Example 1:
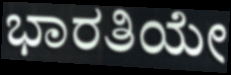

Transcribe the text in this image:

ಭಾರತಿಯೇ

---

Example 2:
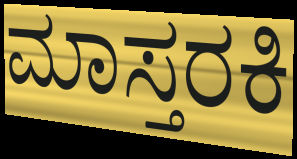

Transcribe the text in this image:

ಮಾಸ್ತರಕಿ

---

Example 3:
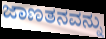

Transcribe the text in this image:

ಜಾಣತನವನ್ನು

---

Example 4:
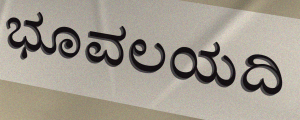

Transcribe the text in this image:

ಭೂವಲಯದಿ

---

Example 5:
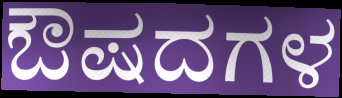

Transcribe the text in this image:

ಔಷದಗಳ